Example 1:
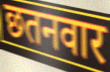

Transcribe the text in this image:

छतनवार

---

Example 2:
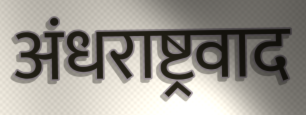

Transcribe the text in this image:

अंधराष्ट्रवाद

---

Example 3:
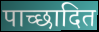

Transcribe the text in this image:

पाच्छादित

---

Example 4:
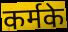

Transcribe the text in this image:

कर्मके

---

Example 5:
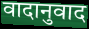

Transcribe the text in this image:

वादानुवाद